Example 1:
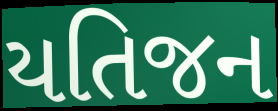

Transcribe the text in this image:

યતિજન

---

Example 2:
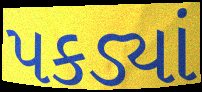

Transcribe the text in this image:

પકડ્યાં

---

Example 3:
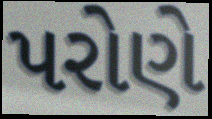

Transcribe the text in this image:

પરોણે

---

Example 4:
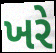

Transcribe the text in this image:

ખરે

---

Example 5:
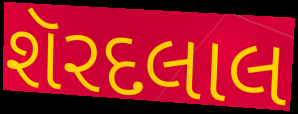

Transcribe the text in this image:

શૅરદલાલ